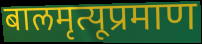
बालमृत्यूप्रमाण